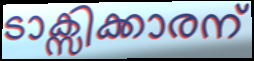
ടാക്സിക്കാരന്